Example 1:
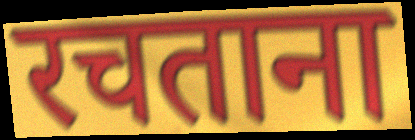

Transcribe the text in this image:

रचताना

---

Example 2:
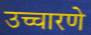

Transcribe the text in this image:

उच्चारणे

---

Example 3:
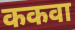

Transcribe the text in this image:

ककवा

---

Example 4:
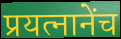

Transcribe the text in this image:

प्रयत्नानेंच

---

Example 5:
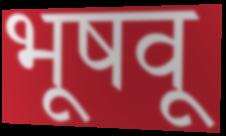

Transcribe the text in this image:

भूषवू